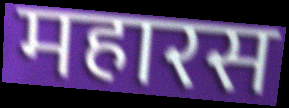
महारस